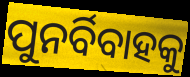
ପୁନର୍ବିବାହକୁ